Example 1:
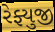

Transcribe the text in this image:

રેફ્યુજી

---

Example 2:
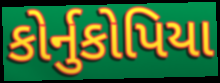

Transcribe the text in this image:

કોર્નુકોપિયા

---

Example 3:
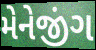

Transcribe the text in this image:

મેનેજીંગ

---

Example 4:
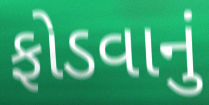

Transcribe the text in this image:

ફોડવાનું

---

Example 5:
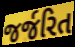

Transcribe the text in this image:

જર્જરિત